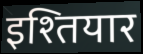
इश्तियार